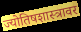
ज्योतिषशास्त्रावर